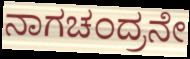
ನಾಗಚಂದ್ರನೇ